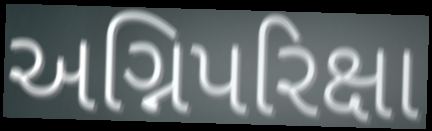
અગ્નિપરિક્ષા